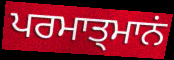
ਪਰਮਾਤ੍ਮਾਨਂ